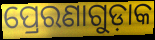
ପ୍ରେରଣାଗୁଡ଼ାକ